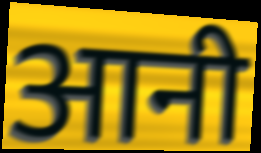
आनी